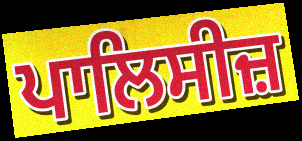
ਪਾਲਿਸੀਜ਼